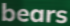
bears